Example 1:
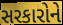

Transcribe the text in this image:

સરકારોને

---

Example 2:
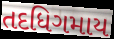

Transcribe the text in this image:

તદધિગમાય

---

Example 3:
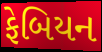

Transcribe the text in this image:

ફેબિયન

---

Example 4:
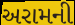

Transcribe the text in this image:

અરામની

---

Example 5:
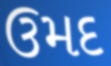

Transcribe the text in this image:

ઉમદ